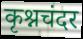
कृश्नचंदर